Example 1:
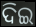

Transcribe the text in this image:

ଦିଇ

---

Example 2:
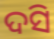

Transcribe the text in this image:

ଦସି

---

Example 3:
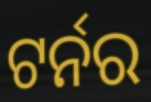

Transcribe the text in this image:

ଟର୍ନର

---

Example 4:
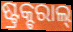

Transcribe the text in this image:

ଷ୍ଟ୍ରକ୍ଚରାଲ୍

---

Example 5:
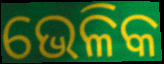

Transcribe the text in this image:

ଭେଳିକ